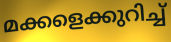
മക്കളെക്കുറിച്ച്